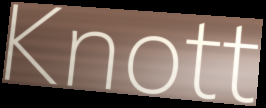
Knott